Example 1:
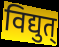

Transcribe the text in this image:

विद्युत्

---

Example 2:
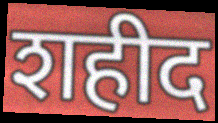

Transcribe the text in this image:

शहीद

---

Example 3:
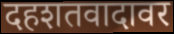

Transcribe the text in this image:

दहशतवादावर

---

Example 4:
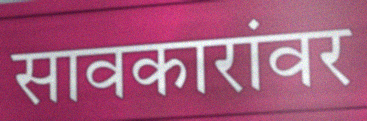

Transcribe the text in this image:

सावकारांवर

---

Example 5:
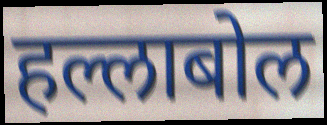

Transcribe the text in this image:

हल्लाबोल